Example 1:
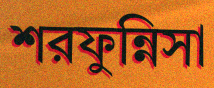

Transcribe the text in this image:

শরফুন্নিসা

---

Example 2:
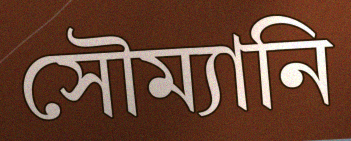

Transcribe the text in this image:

সৌম্যানি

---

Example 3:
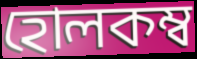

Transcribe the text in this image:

হোলকম্ব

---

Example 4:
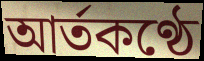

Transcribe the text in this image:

আর্তকণ্ঠে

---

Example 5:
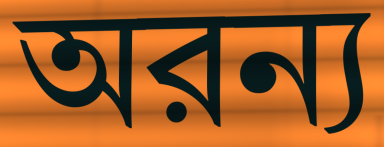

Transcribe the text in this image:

অরন্য